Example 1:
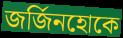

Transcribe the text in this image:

জর্জিনহোকে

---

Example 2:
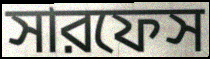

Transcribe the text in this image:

সারফেস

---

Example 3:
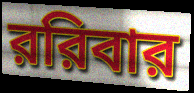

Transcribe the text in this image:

ররিবার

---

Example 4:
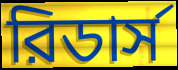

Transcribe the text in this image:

রিডার্স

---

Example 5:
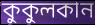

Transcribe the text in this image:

কুকুলকান